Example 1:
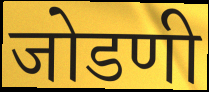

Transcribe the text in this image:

जोडणी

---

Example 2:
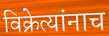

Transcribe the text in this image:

विक्रेत्यांनाच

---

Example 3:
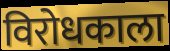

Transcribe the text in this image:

विरोधकाला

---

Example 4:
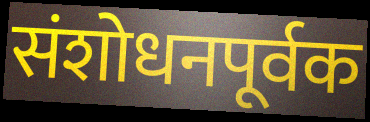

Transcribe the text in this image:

संशोधनपूर्वक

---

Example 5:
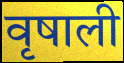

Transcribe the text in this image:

वृषाली